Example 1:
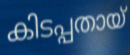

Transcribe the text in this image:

കിടപ്പതായ്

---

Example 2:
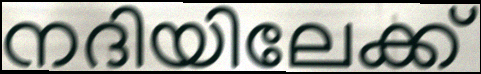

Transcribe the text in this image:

നദിയിലേക്ക്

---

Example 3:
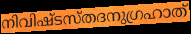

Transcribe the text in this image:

നിവിഷ്ടസ്തദനുഗ്രഹാത്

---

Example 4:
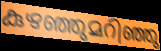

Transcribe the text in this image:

കുഴഞ്ഞുമറിഞ്ഞു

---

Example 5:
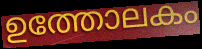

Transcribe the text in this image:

ഉത്തോലകം